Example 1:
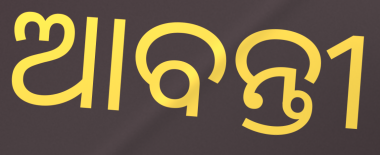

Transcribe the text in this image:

ଆବନ୍ତୀ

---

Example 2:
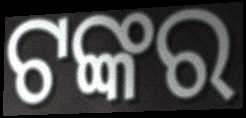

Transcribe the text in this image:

ଟଙ୍କର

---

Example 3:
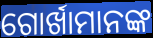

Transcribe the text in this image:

ଗୋର୍ଖାମାନଙ୍କ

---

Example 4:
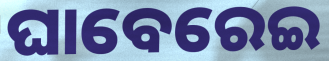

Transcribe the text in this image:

ଘାବେରେଇ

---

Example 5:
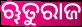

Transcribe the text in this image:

ୠତୁରାଜ